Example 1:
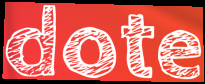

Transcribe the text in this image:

dote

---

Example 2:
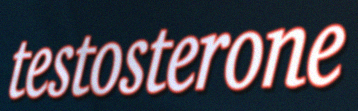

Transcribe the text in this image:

testosterone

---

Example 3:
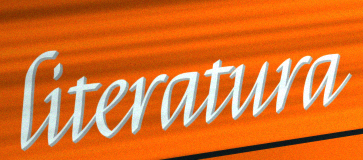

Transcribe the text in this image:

literatura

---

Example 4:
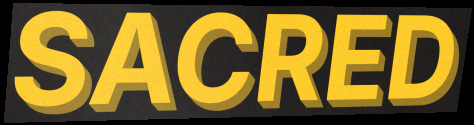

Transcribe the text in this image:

SACRED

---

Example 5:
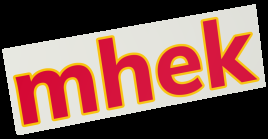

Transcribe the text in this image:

mhek